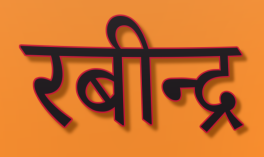
रबीन्द्र